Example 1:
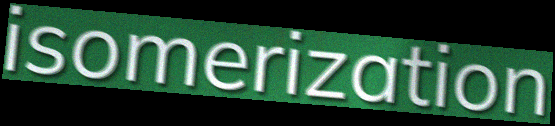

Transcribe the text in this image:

isomerization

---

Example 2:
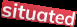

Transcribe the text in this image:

situated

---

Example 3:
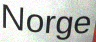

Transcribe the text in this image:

Norge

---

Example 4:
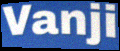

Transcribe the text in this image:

Vanji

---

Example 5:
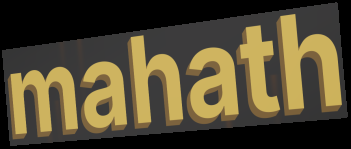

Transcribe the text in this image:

mahath